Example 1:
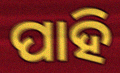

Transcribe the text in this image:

ପାହି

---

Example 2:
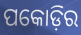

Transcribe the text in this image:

ପକୋଡ଼ିର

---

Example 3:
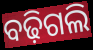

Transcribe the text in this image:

ବଢ଼ିଗଲି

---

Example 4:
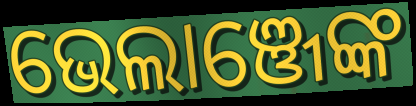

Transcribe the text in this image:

ଭେଲାଞ୍ଜେଙ୍କ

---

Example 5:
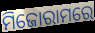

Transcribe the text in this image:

ମିଜୋରାମରେ